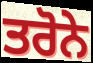
ਤਰੋਨੇ